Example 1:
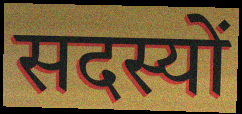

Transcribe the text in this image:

सदस्यों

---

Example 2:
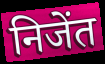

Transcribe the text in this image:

निजेंत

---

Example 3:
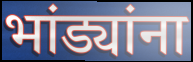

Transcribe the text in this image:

भांड्यांना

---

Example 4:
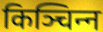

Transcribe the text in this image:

किञ्चिन्न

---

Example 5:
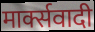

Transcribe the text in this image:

मार्क्सवादी